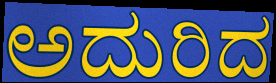
ಅದುರಿದ